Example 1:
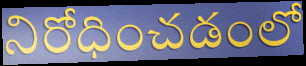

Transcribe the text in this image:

నిరోధించడంలో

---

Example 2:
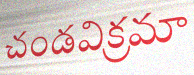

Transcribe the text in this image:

చండవిక్రమా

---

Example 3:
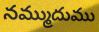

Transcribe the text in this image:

నమ్ముదుము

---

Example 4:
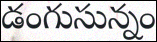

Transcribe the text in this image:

డంగుసున్నం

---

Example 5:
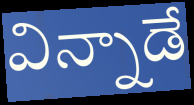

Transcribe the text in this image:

విన్నాడే